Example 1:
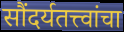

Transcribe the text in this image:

सौंदर्यतत्त्वांचा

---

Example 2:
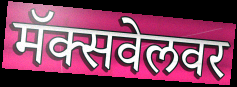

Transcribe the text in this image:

मॅक्सवेलवर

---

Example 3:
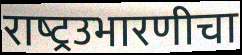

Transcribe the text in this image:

राष्ट्रउभारणीचा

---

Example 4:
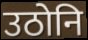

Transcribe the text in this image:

उठोनि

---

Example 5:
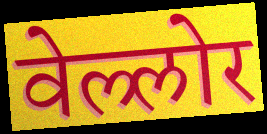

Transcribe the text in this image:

वेल्लोर